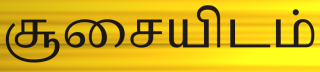
சூசையிடம்